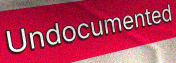
Undocumented